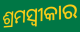
ଶ୍ରମସ୍ୱୀକାର